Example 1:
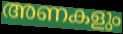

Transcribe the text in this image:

അണകളും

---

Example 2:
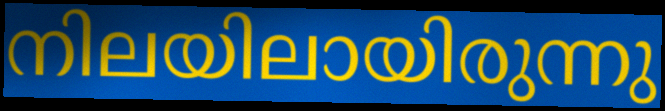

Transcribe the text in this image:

നിലയിലായിരുന്നു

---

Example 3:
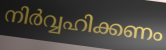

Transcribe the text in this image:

നിർവ്വഹിക്കണം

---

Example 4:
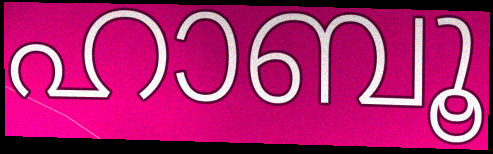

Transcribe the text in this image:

ഹാബൂ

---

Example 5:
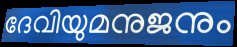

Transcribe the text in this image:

ദേവിയുമനുജനും